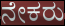
ನೇಕರು